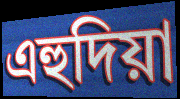
এহুদিয়া